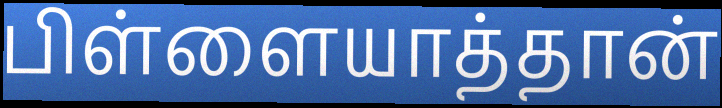
பிள்ளையாத்தான்